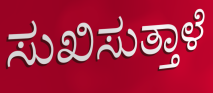
ಸುಖಿಸುತ್ತಾಳೆ